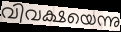
വിവക്ഷയെന്നു